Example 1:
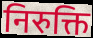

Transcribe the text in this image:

निरुक्ति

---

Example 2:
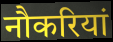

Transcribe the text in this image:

नौकरियां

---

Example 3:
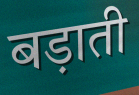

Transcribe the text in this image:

बड़ाती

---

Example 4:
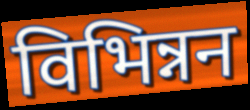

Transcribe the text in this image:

विभिन्नन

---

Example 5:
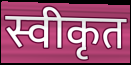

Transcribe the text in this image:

स्वीकृत